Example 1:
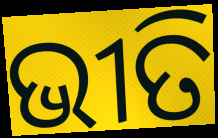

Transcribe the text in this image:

ଭୀତି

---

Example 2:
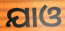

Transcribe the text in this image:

ଯାଓ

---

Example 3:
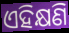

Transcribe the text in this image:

ଏହିକ୍ଷଣି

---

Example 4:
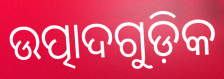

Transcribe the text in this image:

ଉତ୍ପାଦଗୁଡ଼ିକ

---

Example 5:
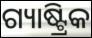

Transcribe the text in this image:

ଗ୍ୟାଷ୍ଟ୍ରିକ